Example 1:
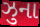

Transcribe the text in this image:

ઝુના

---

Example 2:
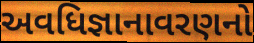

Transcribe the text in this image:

અવધિજ્ઞાનાવરણનો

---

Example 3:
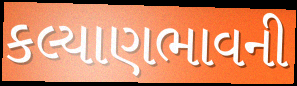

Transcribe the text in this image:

કલ્યાણભાવની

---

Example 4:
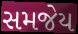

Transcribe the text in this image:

સમજેય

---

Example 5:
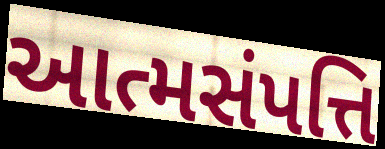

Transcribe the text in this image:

આત્મસંપત્તિ